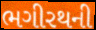
ભગીરથની